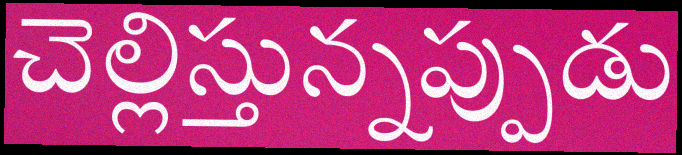
చెల్లిస్తున్నప్పుడు